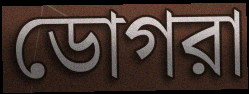
ডোগরা